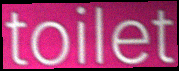
toilet